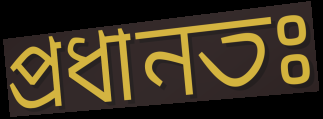
প্রধানতঃ